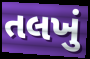
તલખું